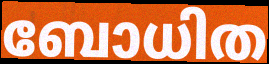
ബോധിത